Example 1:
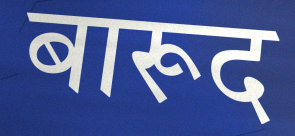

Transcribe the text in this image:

बारूद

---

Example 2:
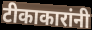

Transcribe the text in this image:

टीकाकारांनी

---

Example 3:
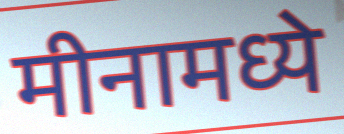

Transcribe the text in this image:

मीनामध्ये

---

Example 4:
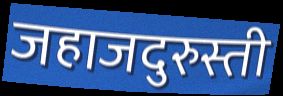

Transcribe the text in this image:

जहाजदुरुस्ती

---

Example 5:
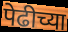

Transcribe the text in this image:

पेढीच्या